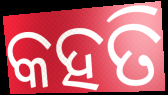
କହତି